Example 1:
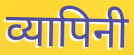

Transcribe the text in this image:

व्यापिनी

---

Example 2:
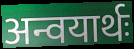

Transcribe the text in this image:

अन्वयार्थः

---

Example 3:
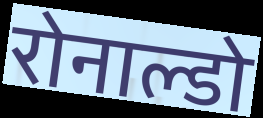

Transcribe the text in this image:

रोनाल्डो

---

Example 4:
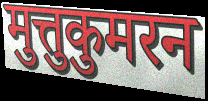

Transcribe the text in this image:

मुत्तुकुमरन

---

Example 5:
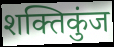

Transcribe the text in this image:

शक्तिकुंज